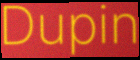
Dupin